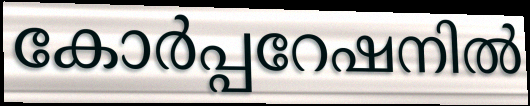
കോർപ്പറേഷനിൽ